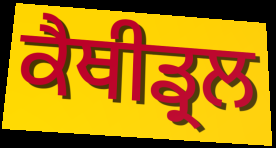
ਕੈਥੀਡ੍ਰਲ